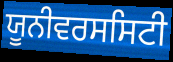
ਯੂਨੀਵਰਸਸਿਟੀ